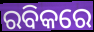
ରବିକରେ